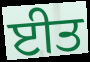
ਈਤ